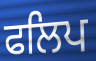
ਫਲਿਪ